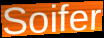
Soifer